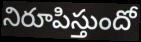
నిరూపిస్తుందో